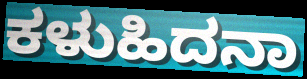
ಕಳುಹಿದನಾ